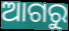
ଆଗରୁ